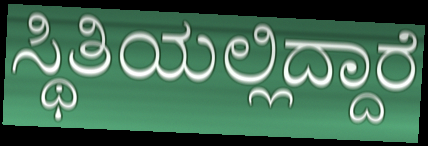
ಸ್ಥಿತಿಯಲ್ಲಿದ್ದಾರೆ